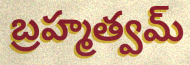
బ్రహ్మత్వమ్